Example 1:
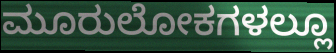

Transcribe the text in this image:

ಮೂರುಲೋಕಗಳಲ್ಲೂ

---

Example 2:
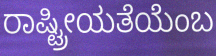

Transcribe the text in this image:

ರಾಷ್ಟ್ರೀಯತೆಯೆಂಬ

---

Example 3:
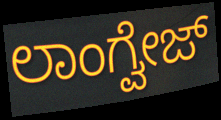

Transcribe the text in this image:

ಲಾಂಗ್ವೇಜ್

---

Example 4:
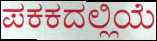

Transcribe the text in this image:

ಪಕಕದಲ್ಲಿಯೆ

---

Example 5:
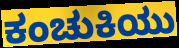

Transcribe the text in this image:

ಕಂಚುಕಿಯು